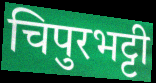
चिपुरभट्टी